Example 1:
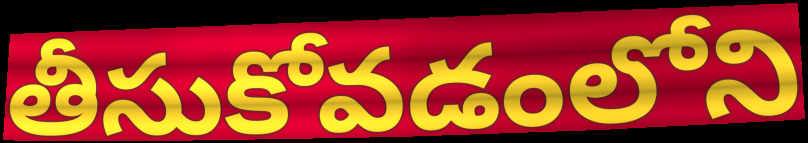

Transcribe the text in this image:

తీసుకోవడంలోని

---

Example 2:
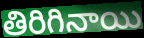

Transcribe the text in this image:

తిరిగినాయి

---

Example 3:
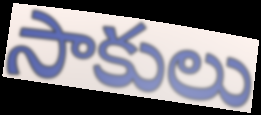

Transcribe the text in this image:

సాకులు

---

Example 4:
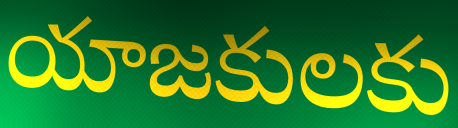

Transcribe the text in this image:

యాజకులకు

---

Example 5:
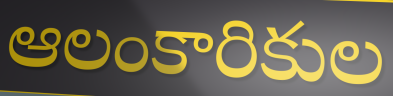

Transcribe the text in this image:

ఆలంకారికుల